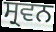
ਸ੍ਰਵਨ